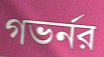
গভর্নর